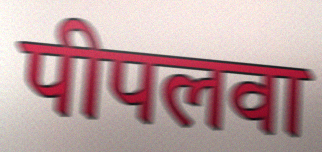
पीपलवा